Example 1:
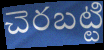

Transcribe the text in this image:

చెరబట్టి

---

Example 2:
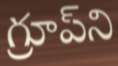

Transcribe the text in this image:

గ్రూప్‌ని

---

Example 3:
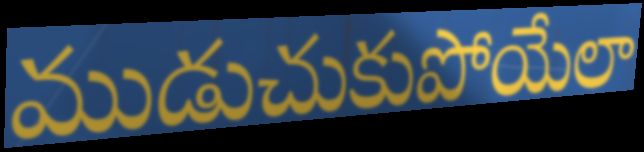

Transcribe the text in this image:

ముడుచుకుపోయేలా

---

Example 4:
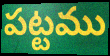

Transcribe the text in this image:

పట్టము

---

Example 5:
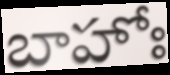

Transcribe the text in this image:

బాహోః